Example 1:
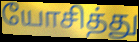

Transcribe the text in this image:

யோசித்து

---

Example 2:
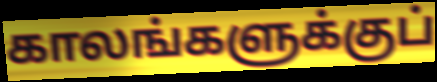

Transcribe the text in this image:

காலங்களுக்குப்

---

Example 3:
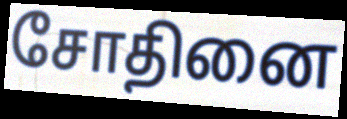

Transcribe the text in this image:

சோதினை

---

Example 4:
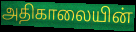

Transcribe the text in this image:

அதிகாலையின்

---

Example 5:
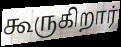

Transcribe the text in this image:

கூருகிறார்